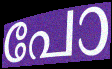
പോ